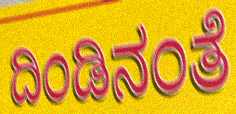
ದಿಂಡಿನಂತೆ